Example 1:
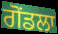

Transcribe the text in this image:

ਗੋਂਡਲਾ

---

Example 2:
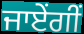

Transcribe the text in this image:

ਜਾਏਂਗੀਂ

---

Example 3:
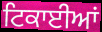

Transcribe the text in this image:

ਟਿਕਾਈਆਂ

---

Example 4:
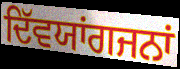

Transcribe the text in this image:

ਦਿੱਵਯਾਂਗਜਨਾਂ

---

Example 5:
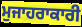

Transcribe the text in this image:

ਮੁਜਾਹਰਾਕਾਰੀ